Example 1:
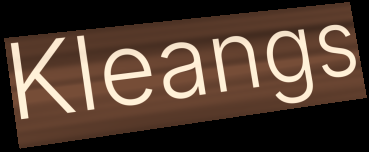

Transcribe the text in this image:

Kleangs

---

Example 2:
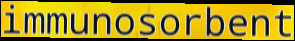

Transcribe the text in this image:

immunosorbent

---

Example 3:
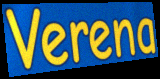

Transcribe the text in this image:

Verena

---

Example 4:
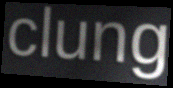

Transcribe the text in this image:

clung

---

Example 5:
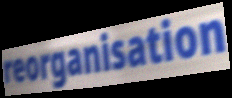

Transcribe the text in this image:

reorganisation